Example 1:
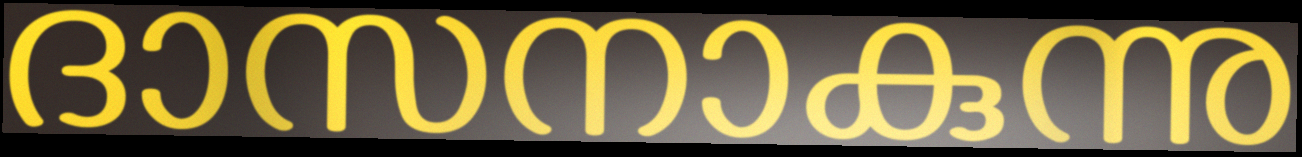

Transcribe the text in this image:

ദാസനാകുന്നു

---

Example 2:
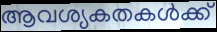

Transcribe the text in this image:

ആവശ്യകതകൾക്ക്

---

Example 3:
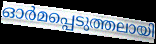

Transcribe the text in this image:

ഓർമപ്പെടുത്തലായി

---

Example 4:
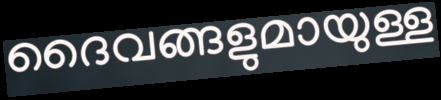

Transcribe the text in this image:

ദൈവങ്ങളുമായുള്ള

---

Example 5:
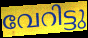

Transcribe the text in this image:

വേറിട്ടു